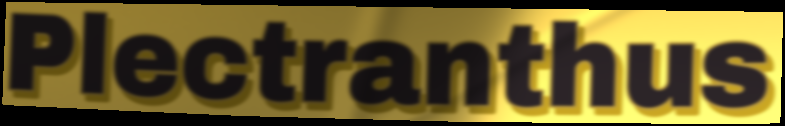
Plectranthus